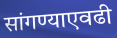
सांगण्याएवढी